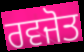
ਰਵਜੋਤ